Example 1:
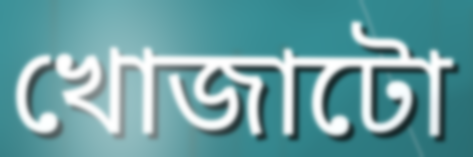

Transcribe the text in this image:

খোজাটো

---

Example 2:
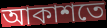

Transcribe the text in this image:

আকাশতে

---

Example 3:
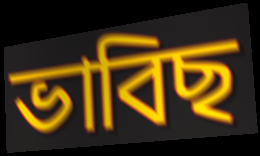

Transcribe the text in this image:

ভাবিছ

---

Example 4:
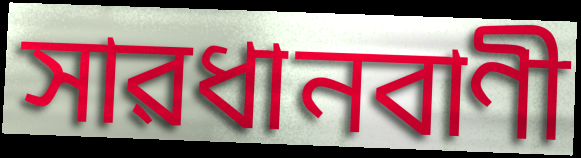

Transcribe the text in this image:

সাৱধানবাণী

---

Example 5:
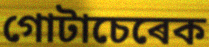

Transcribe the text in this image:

গোটাচেৰেক